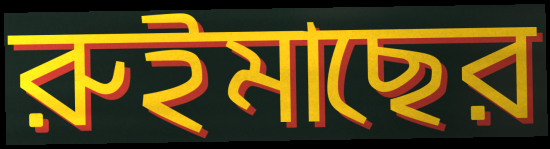
রুইমাছের